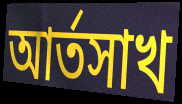
আর্তসাখ